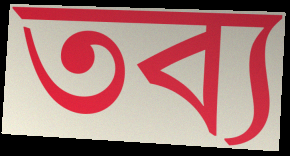
তব্য